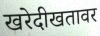
खरेदीखतावर